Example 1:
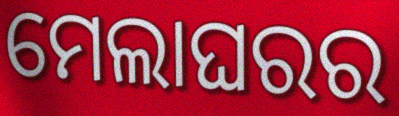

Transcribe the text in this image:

ମେଲାଘରର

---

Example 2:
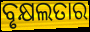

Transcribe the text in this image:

ବୃକ୍ଷଲତାର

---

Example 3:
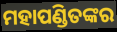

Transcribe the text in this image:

ମହାପଣ୍ଡିତଙ୍କର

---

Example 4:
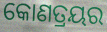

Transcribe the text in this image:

କୋଣତ୍ରୟର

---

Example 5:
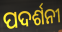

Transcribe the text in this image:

ପଦର୍ଶନୀ